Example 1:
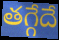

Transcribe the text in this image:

తగ్గేదే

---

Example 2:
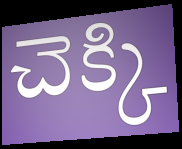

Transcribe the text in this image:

చెక్కి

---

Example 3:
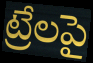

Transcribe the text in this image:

ట్రేలపై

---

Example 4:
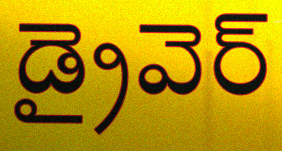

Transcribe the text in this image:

డ్రైవెర్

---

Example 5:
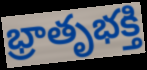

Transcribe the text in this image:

భ్రాతృభక్తి